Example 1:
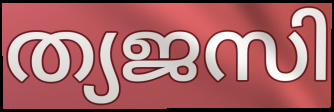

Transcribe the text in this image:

ത്യജസി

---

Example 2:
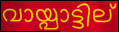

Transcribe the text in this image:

വായ്പാട്ടില്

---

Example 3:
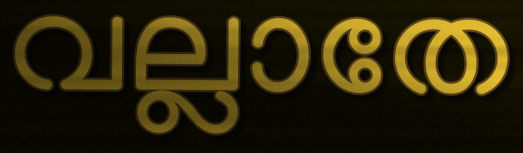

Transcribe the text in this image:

വല്ലാതേ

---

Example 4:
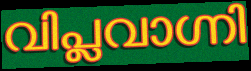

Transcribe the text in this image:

വിപ്ലവാഗ്നി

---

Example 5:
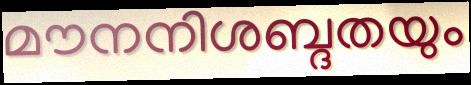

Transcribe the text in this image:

മൗനനിശബ്ദതയും